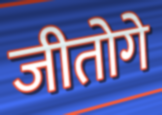
जीतोगे